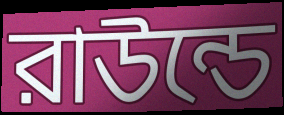
রাউন্ডে